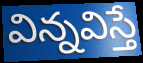
విన్నవిస్తే